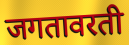
जगतावरती